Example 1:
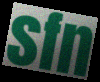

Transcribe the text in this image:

sfn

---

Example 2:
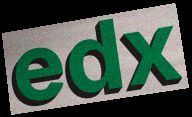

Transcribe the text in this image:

edx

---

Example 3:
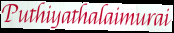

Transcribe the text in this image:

Puthiyathalaimurai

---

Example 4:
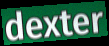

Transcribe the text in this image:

dexter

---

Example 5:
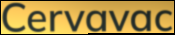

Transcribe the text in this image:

Cervavac